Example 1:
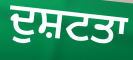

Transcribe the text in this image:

ਦੁਸ਼ਟਤਾ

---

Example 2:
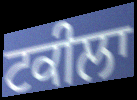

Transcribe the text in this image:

ਟਕੀਲਾ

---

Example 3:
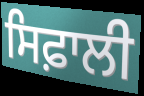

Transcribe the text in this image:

ਸਿਫ਼ਾਲੀ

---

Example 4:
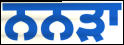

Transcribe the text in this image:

ਨਨੜਾ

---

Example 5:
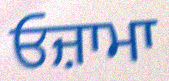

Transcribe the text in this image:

ਓਜ਼ਾਮਾ